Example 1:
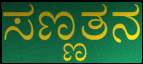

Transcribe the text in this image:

ಸಣ್ಣತನ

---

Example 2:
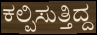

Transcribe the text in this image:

ಕಲ್ಪಿಸುತ್ತಿದ್ದ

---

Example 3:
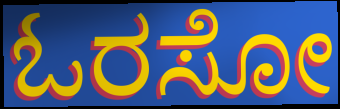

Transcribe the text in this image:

ಓರಸೋ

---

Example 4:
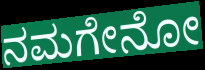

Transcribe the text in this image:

ನಮಗೇನೋ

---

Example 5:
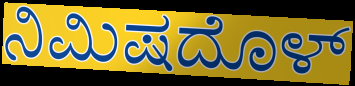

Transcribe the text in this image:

ನಿಮಿಷದೊಳ್